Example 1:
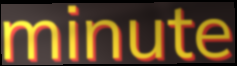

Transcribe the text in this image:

minute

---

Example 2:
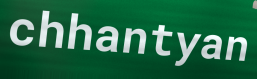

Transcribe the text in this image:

chhantyan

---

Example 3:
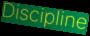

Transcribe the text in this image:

Discipline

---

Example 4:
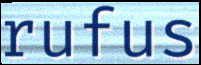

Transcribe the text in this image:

rufus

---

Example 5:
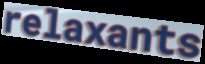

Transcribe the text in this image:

relaxants